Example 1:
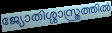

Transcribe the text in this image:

ജ്യോതിശ്ശാസ്ത്രത്തിൽ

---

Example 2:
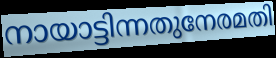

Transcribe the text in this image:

നായാട്ടിന്നതുനേരമതി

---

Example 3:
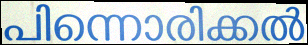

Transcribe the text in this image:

പിന്നൊരിക്കൽ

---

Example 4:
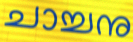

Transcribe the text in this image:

ചാച്ചനു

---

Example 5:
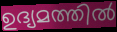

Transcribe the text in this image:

ഉദ്യമത്തിൽ